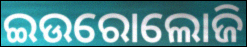
ଇଉରୋଲୋଜି